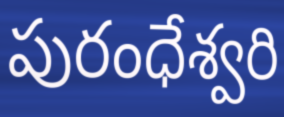
పురంధేశ్వరి